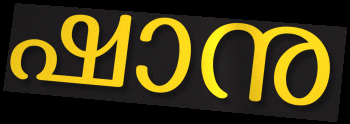
ഷാനു